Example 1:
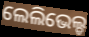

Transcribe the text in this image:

ଲେଲିଭେଲ୍ଡ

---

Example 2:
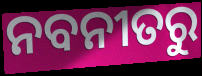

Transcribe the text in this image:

ନବନୀତରୁ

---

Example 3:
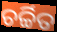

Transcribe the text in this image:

ଚର୍ଚ୍ଚିତ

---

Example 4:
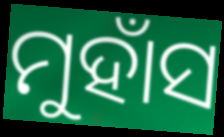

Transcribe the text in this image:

ମୁହାଁସ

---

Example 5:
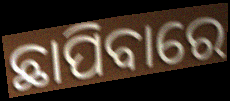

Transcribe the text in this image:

ଛାପିବାରେ